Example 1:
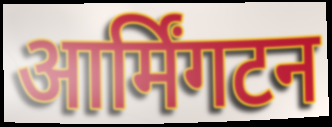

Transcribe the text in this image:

आर्मिंगटन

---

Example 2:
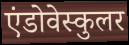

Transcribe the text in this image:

एंडोवेस्कुलर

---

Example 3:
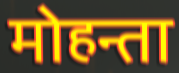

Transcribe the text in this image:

मोहन्ता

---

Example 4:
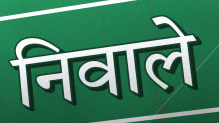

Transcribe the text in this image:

निवाले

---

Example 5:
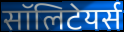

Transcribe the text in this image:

सॉलिटेयर्स